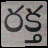
రక్త